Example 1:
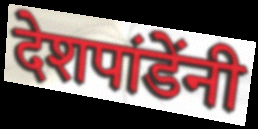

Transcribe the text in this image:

देशपांडेंनी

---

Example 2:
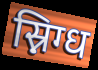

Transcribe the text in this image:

स्निग्ध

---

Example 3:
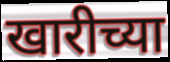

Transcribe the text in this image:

खारीच्या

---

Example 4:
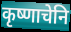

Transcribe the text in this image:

कृष्णाचेनि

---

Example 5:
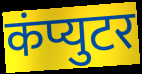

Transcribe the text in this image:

कंप्युटर